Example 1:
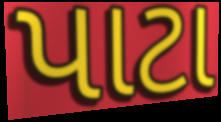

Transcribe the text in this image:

પાટા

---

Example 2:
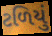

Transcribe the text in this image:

ટળિયું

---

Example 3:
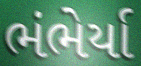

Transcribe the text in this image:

ભંભેર્યા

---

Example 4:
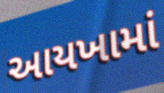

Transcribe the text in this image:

આયખામાં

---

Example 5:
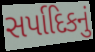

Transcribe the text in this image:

સર્પાદિકનું